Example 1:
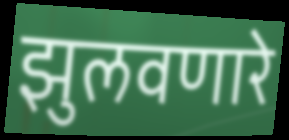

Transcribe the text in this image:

झुलवणारे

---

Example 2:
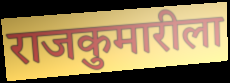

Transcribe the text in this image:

राजकुमारीला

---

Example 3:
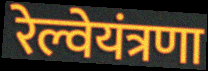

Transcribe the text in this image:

रेल्वेयंत्रणा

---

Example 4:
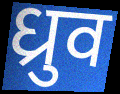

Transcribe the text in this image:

ध्रुव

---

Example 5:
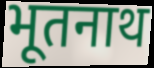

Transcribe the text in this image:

भूतनाथ